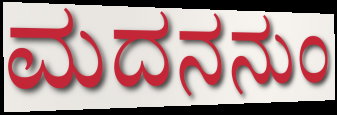
ಮದನನುಂ